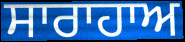
ਸਾਰਾਹਾਅ